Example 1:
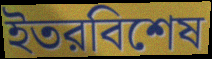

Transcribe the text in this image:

ইতরবিশেষ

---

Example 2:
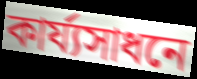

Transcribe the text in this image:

কার্য্যসাধনে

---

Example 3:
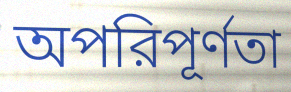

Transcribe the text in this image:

অপরিপূর্ণতা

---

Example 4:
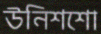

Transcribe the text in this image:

উনিশশো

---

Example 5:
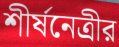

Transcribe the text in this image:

শীর্ষনেত্রীর